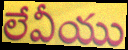
లేవీయు